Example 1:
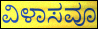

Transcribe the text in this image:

ವಿಳಾಸವೂ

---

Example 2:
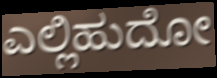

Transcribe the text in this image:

ಎಲ್ಲಿಹುದೋ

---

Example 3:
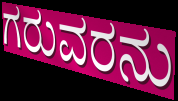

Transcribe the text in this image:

ಗರುವರನು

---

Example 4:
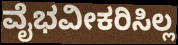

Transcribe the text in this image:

ವೈಭವೀಕರಿಸಿಲ್ಲ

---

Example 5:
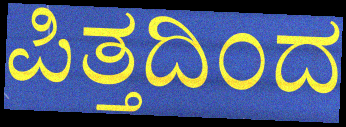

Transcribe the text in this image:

ಪಿತ್ತದಿಂದ